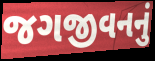
જગજીવનનું